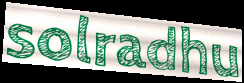
solradhu